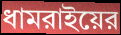
ধামরাইয়ের